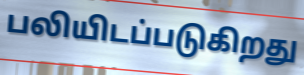
பலியிடப்படுகிறது